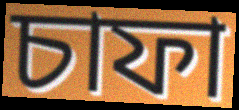
চাফা